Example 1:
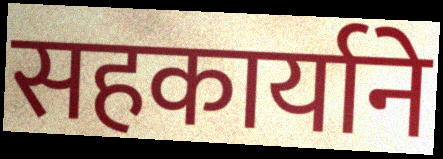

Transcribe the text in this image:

सहकार्याने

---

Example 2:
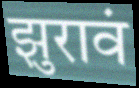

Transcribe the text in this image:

झुरावं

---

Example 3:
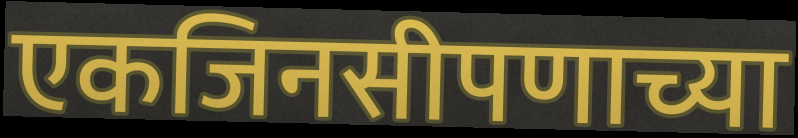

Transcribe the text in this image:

एकजिनसीपणाच्या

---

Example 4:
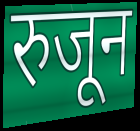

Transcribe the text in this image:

रुजून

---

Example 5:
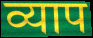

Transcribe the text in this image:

व्याप